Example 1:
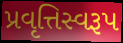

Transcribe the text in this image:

પ્રવૃત્તિસ્વરૂપ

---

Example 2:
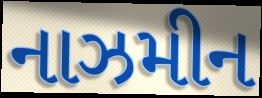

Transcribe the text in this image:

નાઝમીન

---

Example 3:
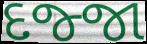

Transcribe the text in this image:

દજ્જા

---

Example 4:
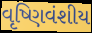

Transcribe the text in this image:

વૃષ્ણિવંશીય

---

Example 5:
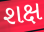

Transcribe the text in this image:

શક્ષ